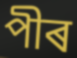
পীৰ